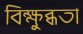
বিক্ষুব্ধতা